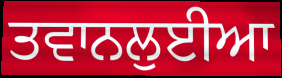
ਤਵਾਨਲੁਈਆ